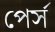
পের্স